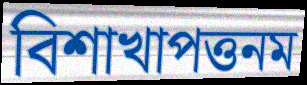
বিশাখাপত্তনম